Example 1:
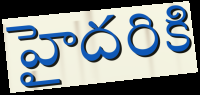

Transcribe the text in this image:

హైదరికి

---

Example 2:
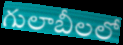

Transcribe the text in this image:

గులాబీలలో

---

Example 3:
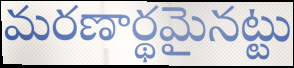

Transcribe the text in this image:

మరణార్థమైనట్టు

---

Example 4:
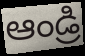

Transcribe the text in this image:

ఆండ్రి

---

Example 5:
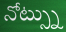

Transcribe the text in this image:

నోట్స్ను